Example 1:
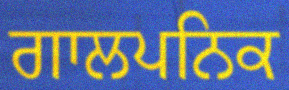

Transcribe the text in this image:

ਗਾਲਪਨਿਕ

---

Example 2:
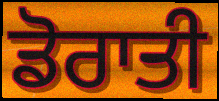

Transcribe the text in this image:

ਡੋਰਾਤੀ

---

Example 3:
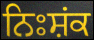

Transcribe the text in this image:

ਨਿਃਸ਼ਂਕ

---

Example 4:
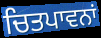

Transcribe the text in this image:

ਚਿਤਪਾਵਨਾਂ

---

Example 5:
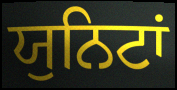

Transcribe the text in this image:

ਯੁਨਿਟਾਂ